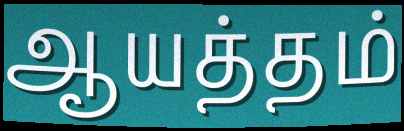
ஆயத்தம்